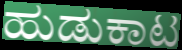
ಹುಡುಕಾಟ